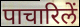
पाचारिलें